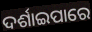
ଦର୍ଶାଇପାରେ